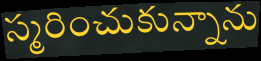
స్మరించుకున్నాను